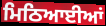
ਮਿਠਿਆਈਆਂ